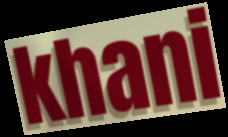
khani